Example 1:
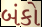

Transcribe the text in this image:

બંકો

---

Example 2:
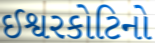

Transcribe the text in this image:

ઈશ્વરકોટિનો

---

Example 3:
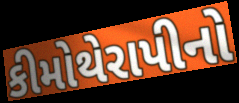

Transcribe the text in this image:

કીમોથેરાપીનો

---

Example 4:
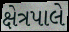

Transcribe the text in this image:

ક્ષેત્રપાલે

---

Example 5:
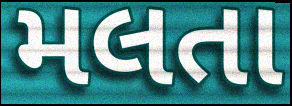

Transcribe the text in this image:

મલતા